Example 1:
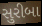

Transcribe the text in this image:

સુરીબા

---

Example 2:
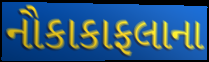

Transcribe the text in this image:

નૌકાકાફલાના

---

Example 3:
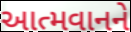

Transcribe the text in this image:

આત્મવાનને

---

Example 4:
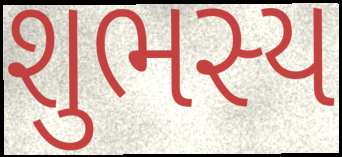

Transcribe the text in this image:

શુભસ્ય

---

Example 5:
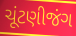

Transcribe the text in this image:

ચૂંટણીજંગ